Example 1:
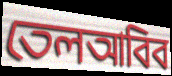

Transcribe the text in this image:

তেলআবিব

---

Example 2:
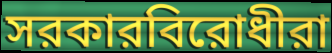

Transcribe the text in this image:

সরকারবিরোধীরা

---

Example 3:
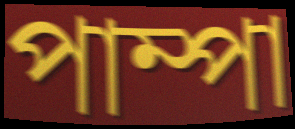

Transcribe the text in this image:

পাম্পা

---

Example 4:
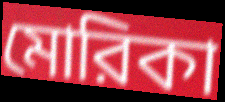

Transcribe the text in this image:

মোরিকা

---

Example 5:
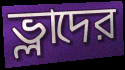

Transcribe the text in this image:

ভ্লাদের